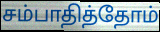
சம்பாதித்தோம்